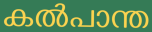
കൽപാന്ത